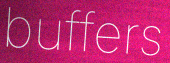
buffers